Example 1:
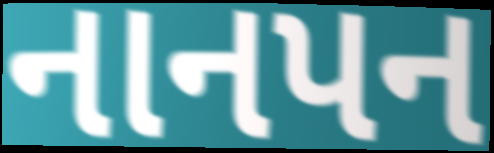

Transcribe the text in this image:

નાનપન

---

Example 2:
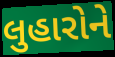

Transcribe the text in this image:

લુહારોને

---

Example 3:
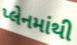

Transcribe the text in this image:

પ્લેનમાંથી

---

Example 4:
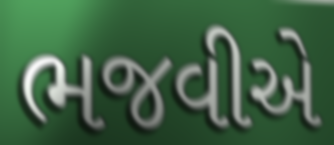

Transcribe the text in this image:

ભજવીએ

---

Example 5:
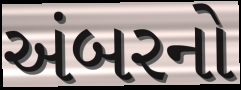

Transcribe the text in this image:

અંબરનો